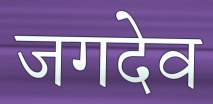
जगदेव